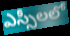
ఎస్సీలలో